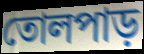
তোলপাড়